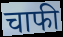
चाफी